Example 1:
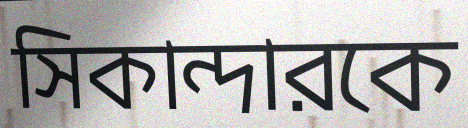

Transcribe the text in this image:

সিকান্দারকে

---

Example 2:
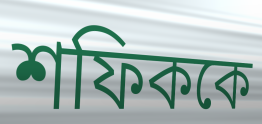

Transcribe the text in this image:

শফিককে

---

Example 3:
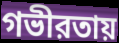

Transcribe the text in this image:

গভীরতায়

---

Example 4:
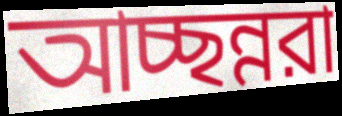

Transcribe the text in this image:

আচ্ছন্নরা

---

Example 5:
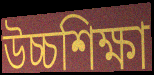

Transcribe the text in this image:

উচ্চশিক্ষা